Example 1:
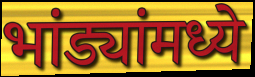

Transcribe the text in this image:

भांड्यांमध्ये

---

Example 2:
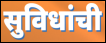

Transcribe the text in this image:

सुविधांची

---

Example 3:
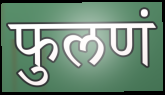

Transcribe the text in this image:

फुलणं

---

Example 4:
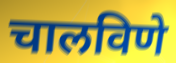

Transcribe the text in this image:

चालविणे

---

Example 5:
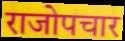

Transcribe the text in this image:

राजोपचार